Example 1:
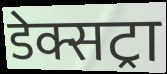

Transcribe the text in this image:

डेक्सट्रा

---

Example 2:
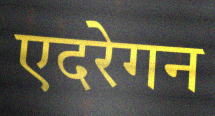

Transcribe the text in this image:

एदरेगन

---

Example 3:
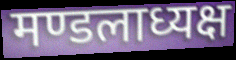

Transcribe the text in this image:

मण्डलाध्यक्ष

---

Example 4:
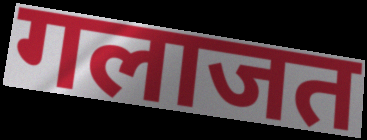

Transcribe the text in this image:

गलाजत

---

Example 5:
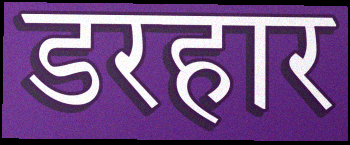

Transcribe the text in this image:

डरहार